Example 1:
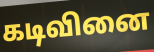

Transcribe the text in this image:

கடிவினை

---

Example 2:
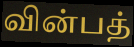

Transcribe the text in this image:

வின்பத்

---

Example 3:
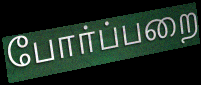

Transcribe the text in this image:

போர்ப்பறை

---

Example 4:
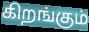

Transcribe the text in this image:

கிறங்கும்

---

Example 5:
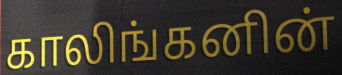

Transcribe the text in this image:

காலிங்கனின்